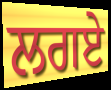
ਲਗਏ